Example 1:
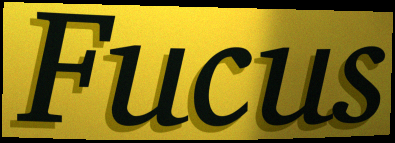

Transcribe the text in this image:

Fucus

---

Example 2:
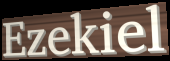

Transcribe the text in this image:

Ezekiel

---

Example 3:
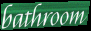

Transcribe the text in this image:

bathroom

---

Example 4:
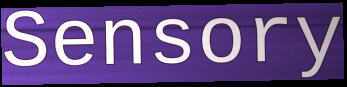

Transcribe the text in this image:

Sensory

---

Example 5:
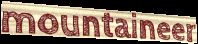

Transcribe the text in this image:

mountaineer